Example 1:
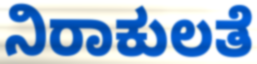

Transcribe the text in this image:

ನಿರಾಕುಲತೆ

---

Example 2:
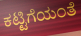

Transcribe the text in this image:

ಕಟ್ಟಿಗೆಯಂತೆ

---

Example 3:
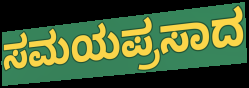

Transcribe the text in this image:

ಸಮಯಪ್ರಸಾದ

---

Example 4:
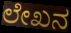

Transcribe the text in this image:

ಲೇಖನ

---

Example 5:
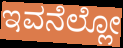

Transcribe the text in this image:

ಇವನೆಲ್ಲೋ